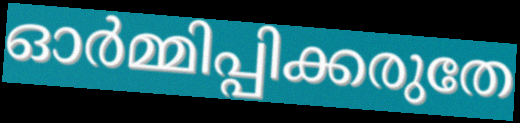
ഓർമ്മിപ്പിക്കരുതേ